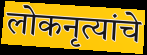
लोकनृत्यांचे